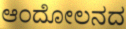
ಆಂದೋಲನದ